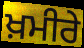
ਖ਼ਮੀਰੇ